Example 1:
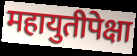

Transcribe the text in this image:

महायुतीपेक्षा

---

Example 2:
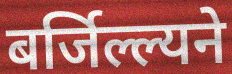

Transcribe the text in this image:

बर्जिल्ल्यने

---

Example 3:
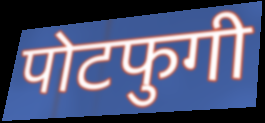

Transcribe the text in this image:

पोटफुगी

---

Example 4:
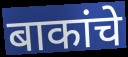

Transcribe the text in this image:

बाकांचे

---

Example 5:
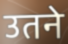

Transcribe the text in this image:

उतने